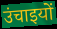
उंचाइयों